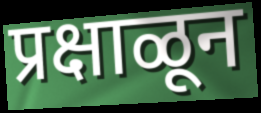
प्रक्षाळून